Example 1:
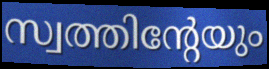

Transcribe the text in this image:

സ്വത്തിന്റേയും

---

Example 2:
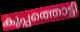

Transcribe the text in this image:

കുപ്പത്തൊട്ടി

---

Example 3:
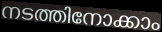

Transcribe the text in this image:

നടത്തിനോക്കാം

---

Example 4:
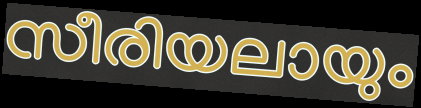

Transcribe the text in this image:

സീരിയലായും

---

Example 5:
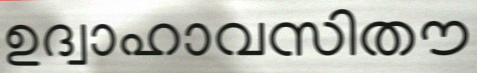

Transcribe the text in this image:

ഉദ്വാഹാവസിതൗ